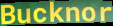
Bucknor